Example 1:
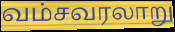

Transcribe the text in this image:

வம்சவரலாறு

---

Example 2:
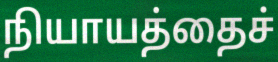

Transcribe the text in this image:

நியாயத்தைச்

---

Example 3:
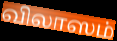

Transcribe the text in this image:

விலாஸம்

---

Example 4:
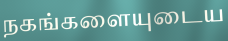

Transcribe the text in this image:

நகங்களையுடைய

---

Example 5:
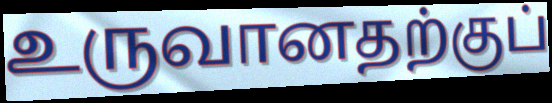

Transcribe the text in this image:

உருவானதற்குப்